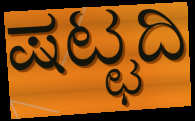
ಷಟ್ಟದಿ